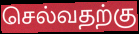
செல்வதற்கு